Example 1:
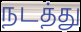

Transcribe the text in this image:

நடத்து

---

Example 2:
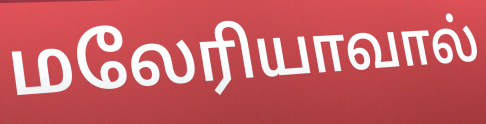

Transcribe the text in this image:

மலேரியாவால்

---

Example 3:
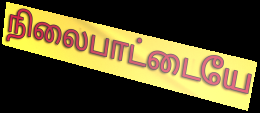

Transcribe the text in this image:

நிலைபாட்டையே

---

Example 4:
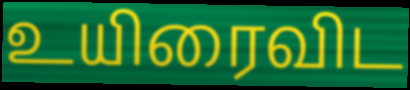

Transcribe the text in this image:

உயிரைவிட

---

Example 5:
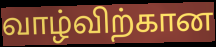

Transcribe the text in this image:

வாழ்விற்கான